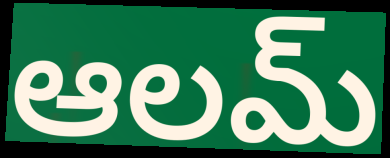
ఆలమ్